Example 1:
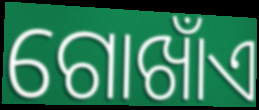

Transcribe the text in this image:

ଗୋଖାଁଏ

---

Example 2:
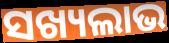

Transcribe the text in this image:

ସଖ୍ୟଲାଭ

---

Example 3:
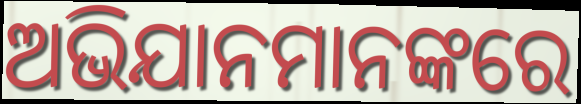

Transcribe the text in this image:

ଅଭିଯାନମାନଙ୍କରେ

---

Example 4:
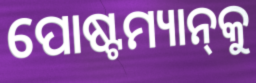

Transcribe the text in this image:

ପୋଷ୍ଟମ୍ୟାନ୍‌କୁ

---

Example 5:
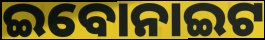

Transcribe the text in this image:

ଇବୋନାଇଟ